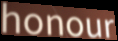
honour